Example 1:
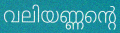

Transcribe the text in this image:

വലിയണ്ണന്റെ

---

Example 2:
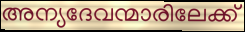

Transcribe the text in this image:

അന്യദേവന്മാരിലേക്ക്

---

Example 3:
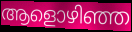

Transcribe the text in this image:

ആളൊഴിഞ്ഞ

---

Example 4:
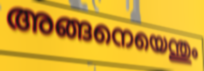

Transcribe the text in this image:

അങ്ങനെയെന്തും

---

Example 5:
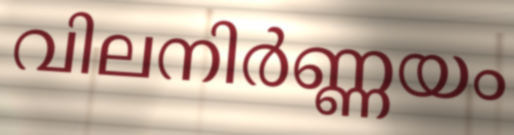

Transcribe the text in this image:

വിലനിർണ്ണയം